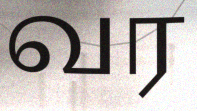
வர